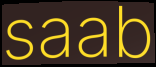
saab